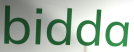
bidda